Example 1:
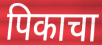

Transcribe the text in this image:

पिकाचा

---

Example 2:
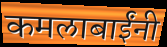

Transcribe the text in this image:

कमलाबाईंनी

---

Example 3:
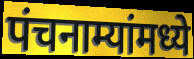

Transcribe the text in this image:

पंचनाम्यांमध्ये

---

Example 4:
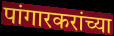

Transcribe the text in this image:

पांगारकरांच्या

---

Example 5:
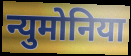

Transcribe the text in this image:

न्युमोनिया